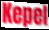
Kepel